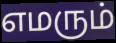
எமரும்